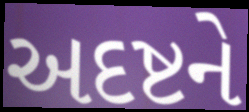
અદષ્ટને